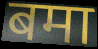
बमा